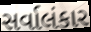
સર્વાલંકાર